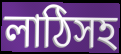
লাঠিসহ